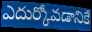
ఎదుర్కోవడానికే